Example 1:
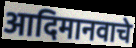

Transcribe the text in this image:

आदिमानवाचे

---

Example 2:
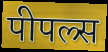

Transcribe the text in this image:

पीपल्स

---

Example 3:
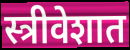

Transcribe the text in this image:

स्त्रीवेशात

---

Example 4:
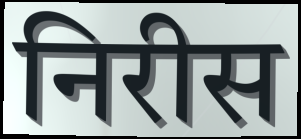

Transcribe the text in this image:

निरीस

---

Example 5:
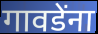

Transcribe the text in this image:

गावडेंना